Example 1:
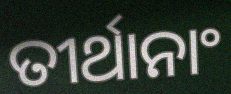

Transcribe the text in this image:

ତୀର୍ଥାନାଂ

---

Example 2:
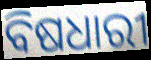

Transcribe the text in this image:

ବିଷଧାରୀ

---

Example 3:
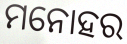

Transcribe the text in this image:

ମନୋହର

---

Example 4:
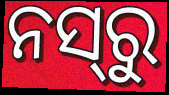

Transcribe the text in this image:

ନସ୍‍ରୁ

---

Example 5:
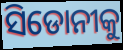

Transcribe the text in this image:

ସିଡୋନୀକୁ